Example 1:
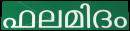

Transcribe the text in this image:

ഫലമിദം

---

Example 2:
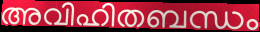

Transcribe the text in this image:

അവിഹിതബന്ധം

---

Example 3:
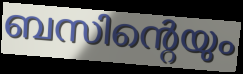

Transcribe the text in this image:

ബസിന്റെയും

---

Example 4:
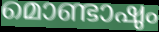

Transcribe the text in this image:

മൊണ്ടാഷും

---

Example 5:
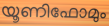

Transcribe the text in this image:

യൂണിഫോമും